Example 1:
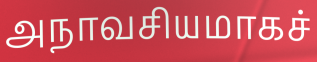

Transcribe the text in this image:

அநாவசியமாகச்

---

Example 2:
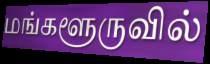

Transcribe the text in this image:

மங்களூருவில்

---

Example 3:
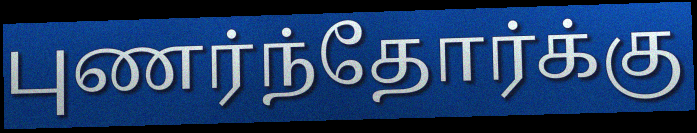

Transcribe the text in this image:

புணர்ந்தோர்க்கு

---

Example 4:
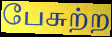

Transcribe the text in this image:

பேசுற்ற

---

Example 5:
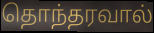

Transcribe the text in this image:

தொந்தரவால்